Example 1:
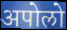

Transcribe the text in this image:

अपोलो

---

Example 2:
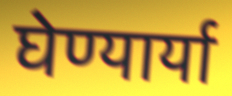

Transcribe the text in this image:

घेण्यार्या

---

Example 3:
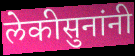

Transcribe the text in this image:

लेकीसुनांनी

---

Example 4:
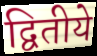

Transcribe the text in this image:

द्वितीये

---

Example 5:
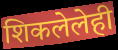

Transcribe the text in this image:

शिकलेलेही